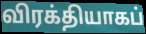
விரக்தியாகப்